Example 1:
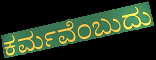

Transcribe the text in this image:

ಕರ್ಮವೆಂಬುದು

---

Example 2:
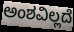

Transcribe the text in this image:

ಅಂಶವಿಲ್ಲದೆ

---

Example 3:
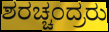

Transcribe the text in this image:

ಶರಚ್ಚಂದ್ರರು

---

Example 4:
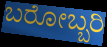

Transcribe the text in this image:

ಬರೋಬ್ಬರಿ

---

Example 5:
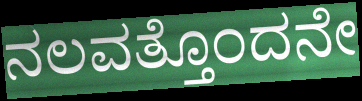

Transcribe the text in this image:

ನಲವತ್ತೊಂದನೇ